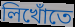
লিখোঁতে